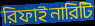
রিফাইনারিটি